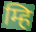
म्हि